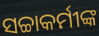
ସଚ୍ଚାକର୍ମୀଙ୍କ